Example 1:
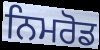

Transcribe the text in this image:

ਨਿਮਰੋਡ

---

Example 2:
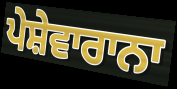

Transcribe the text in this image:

ਪੇਸ਼ੇਵਾਰਾਨਾ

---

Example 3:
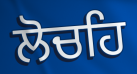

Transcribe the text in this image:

ਲੋਚਹਿ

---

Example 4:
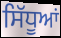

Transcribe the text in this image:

ਸਿੱਧੂਆਂ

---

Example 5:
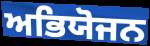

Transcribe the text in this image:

ਅਭਿਯੋਜਨ